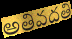
అతివదతి